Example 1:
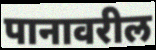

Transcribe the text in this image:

पानावरील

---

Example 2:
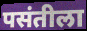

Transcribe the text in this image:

पसंतीला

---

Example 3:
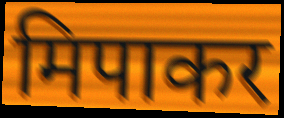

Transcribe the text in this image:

मिपाकर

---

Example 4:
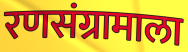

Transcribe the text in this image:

रणसंग्रामाला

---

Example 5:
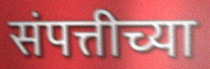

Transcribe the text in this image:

संपत्तीच्या